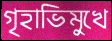
গৃহাভিমুখে